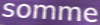
somme